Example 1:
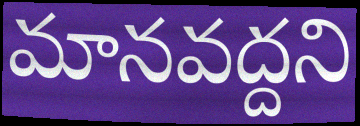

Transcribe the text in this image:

మానవద్దని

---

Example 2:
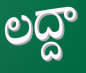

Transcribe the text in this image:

లద్దా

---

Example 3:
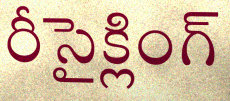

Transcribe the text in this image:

రీసైక్లింగ్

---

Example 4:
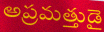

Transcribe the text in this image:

అప్రమత్తుడై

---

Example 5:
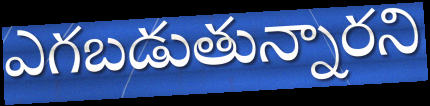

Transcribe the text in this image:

ఎగబడుతున్నారని